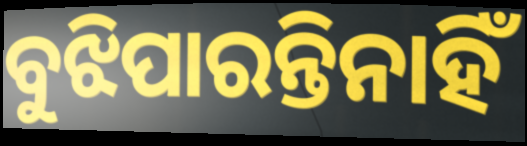
ବୁଝିପାରନ୍ତିନାହିଁ